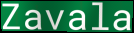
Zavala